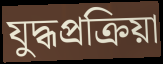
যুদ্ধপ্রক্রিয়া